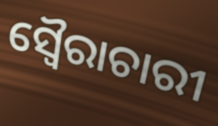
ସ୍ୱୈରାଚାରୀ